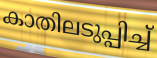
കാതിലടുപ്പിച്ച്